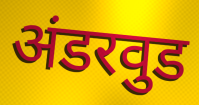
अंडरवुड